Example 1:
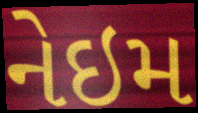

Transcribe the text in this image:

નેઇમ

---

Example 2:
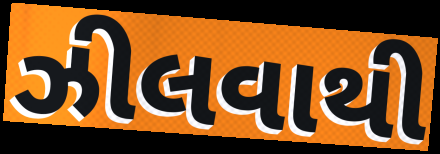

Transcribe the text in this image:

ઝીલવાથી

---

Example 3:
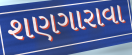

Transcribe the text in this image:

શણગારાવા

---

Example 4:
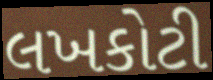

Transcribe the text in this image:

લખકોટી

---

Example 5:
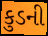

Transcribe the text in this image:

કુડની